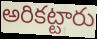
అరికట్టారు